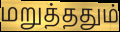
மறுத்ததும்